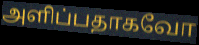
அளிப்பதாகவோ